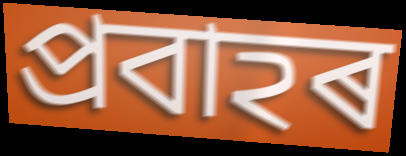
প্ৰবাহৰ